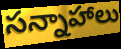
సన్నాహాలు